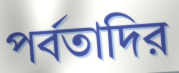
পর্বতাদির